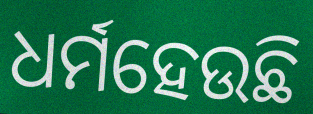
ଧର୍ମହେଉଛି